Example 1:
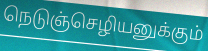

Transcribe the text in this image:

நெடுஞ்செழியனுக்கும்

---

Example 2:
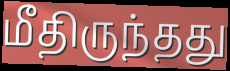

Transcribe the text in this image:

மீதிருந்தது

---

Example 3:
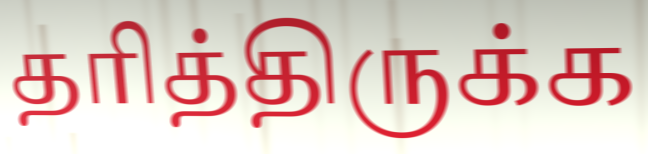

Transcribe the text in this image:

தரித்திருக்க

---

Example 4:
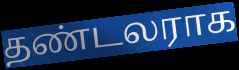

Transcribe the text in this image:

தண்டலராக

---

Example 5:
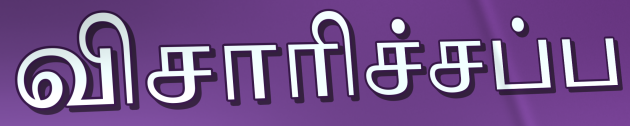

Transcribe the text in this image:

விசாரிச்சப்ப